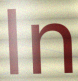
In